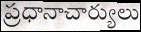
ప్రధానాచార్యులు